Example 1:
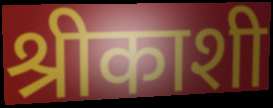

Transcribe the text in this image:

श्रीकाशी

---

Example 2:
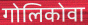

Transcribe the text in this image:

गोलिकोवा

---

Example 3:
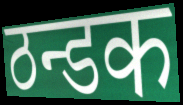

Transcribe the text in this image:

ठन्डक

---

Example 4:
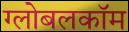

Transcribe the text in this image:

ग्लोबलकॉम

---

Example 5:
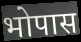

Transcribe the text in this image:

भोपास